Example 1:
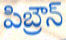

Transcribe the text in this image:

పిబ్రౌన్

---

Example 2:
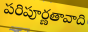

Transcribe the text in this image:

పరిపూర్ణతావాది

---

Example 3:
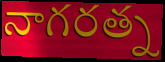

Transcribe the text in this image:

నాగరత్న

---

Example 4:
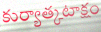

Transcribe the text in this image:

కుర్యాత్కటాక్షం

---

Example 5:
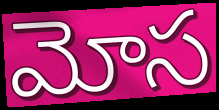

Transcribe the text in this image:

మోస